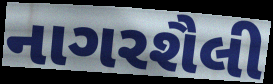
નાગરશૈલી